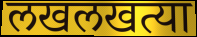
लखलखत्या